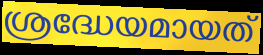
ശ്രദ്ധേയമായത്